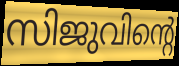
സിജുവിന്റെ